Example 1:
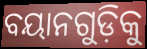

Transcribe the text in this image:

ବୟାନଗୁଡ଼ିକୁ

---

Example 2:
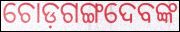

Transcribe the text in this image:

ଚୋଡ଼ଗଙ୍ଗଦେବଙ୍କ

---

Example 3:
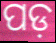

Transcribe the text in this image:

ପଡ଼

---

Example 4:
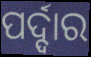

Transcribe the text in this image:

ପର୍ଦ୍ଦାର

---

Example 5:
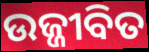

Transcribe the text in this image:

ଉଜ୍ଜୀବିତ